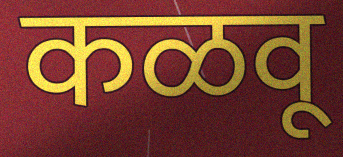
कळवू